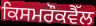
ਕਿਸਮਰੌਕਵੈੱਲ